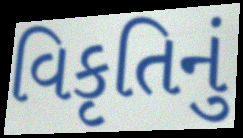
વિકૃતિનું